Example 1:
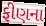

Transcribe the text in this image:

ફીણના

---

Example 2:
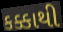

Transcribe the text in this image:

કક્કાથી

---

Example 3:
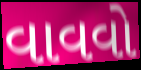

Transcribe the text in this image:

વાવવો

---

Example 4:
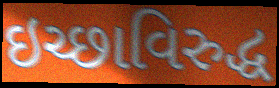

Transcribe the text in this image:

ઇચ્છાવિરુદ્ધ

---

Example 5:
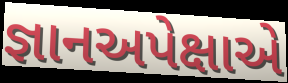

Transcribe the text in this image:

જ્ઞાનઅપેક્ષાએ